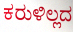
ಕರುಳಿಲ್ಲದ